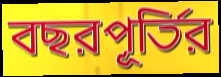
বছরপূর্তির